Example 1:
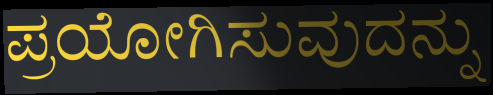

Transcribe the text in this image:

ಪ್ರಯೋಗಿಸುವುದನ್ನು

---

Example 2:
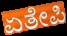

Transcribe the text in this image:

ಏತೇಪಿ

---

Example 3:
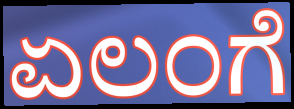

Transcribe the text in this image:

ಏಲಂಗೆ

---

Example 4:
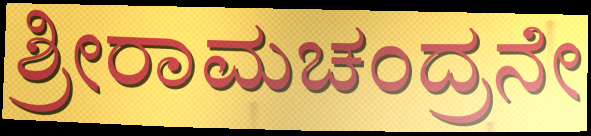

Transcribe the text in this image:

ಶ್ರೀರಾಮಚಂದ್ರನೇ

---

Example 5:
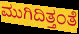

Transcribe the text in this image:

ಮುಗಿದಿತ್ತಂತೆ